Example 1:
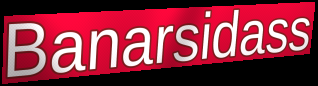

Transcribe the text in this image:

Banarsidass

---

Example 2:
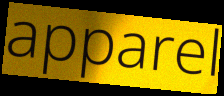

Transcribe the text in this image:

apparel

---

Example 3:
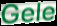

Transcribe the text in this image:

Gele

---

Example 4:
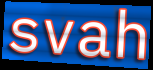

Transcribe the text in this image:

svah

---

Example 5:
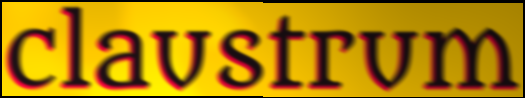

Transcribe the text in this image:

claustrum